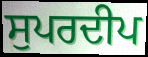
ਸੁਪਰਦੀਪ